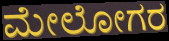
ಮೇಲೋಗರ